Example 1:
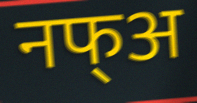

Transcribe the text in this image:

नफ्अ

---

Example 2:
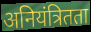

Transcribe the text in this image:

अनियंत्रितता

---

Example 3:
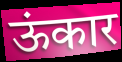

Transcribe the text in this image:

ऊंकार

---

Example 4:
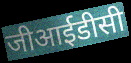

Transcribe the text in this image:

जीआईडीसी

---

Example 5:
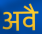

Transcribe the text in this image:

अवै